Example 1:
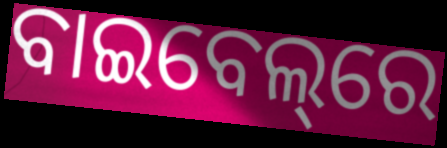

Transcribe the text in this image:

ବାଇବେଲ୍‌ରେ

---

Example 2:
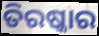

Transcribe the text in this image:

ତିରଷ୍କାର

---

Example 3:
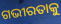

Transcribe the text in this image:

ଗଭୀରତାକୁ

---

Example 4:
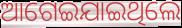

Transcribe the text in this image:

ଆଗେଇଯାଇଥିଲେ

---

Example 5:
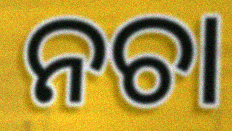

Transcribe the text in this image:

ନଚା